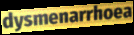
dysmenarrhoea